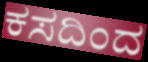
ಕಸದಿಂದ